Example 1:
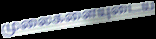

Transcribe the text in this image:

முலைகளையுடைய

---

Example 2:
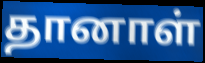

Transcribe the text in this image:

தானாள்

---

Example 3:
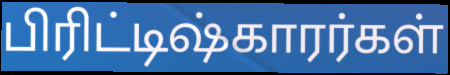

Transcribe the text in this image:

பிரிட்டிஷ்காரர்கள்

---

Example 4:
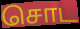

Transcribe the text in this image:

சொட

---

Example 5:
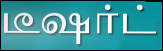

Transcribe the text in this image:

டீஷர்ட்